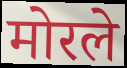
मोरले